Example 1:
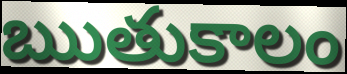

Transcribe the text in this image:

ఋతుకాలం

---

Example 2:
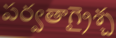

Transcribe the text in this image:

పర్వతాగ్రైశ్చ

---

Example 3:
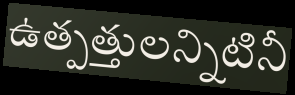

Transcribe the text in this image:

ఉత్పత్తులన్నిటినీ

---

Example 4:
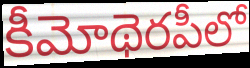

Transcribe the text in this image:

కీమోథెరపీలో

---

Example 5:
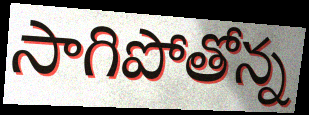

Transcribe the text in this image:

సాగిపోతోన్న